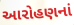
આરોહણનાં